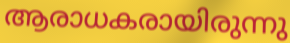
ആരാധകരായിരുന്നു